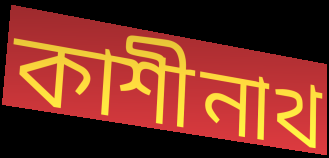
কাশীনাথ